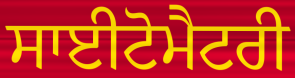
ਸਾਈਟੋਮੈਟਰੀ